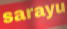
sarayu